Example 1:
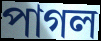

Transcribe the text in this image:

পাগল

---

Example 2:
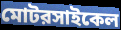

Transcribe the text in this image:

মোটরসাইকেল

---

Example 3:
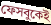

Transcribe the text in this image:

ফেসবুকেই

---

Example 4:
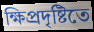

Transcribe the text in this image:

ক্ষিপ্রদৃষ্টিতে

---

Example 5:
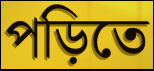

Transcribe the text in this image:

পড়িতে